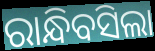
ରାନ୍ଧିବସିଲା